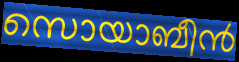
സൊയാബീൻ